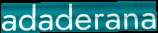
adaderana